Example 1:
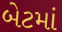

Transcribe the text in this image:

બેટમાં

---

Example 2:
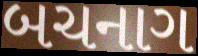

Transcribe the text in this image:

બચનાગ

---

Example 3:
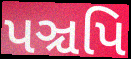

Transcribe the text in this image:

પઞ્ચપિ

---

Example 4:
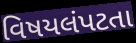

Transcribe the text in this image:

વિષયલંપટતા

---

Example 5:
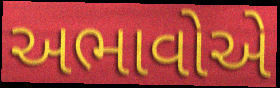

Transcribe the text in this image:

અભાવોએ